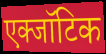
एक्जॉटिक